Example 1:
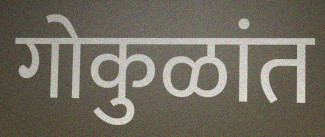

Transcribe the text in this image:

गोकुळांत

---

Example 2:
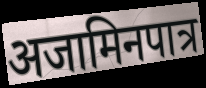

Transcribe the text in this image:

अजामिनपात्र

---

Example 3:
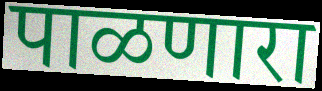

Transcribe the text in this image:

पाळणारा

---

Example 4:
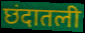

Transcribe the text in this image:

छंदातली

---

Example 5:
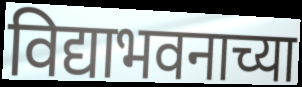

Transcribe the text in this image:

विद्याभवनाच्या